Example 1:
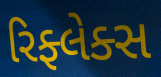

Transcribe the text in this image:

રિફ્લેક્સ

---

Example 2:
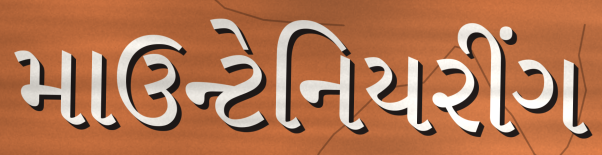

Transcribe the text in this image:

માઉન્ટેનિયરીંગ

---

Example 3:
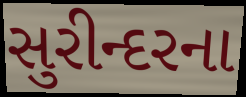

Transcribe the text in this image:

સુરીન્દરના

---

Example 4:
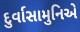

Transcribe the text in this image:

દુર્વાસામુનિએ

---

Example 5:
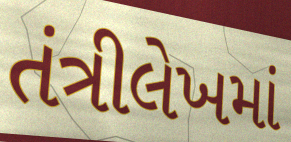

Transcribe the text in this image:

તંત્રીલેખમાં